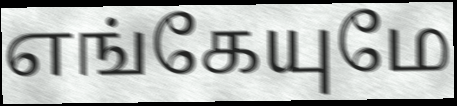
எங்கேயுமே